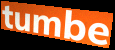
tumbe